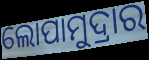
ଲୋପାମୁଦ୍ରାର